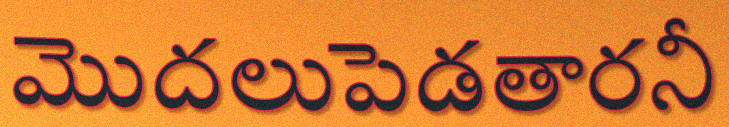
మొదలుపెడతారనీ